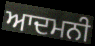
ਆਦਮਨੀ